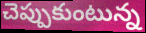
చెప్పుకుంటున్న